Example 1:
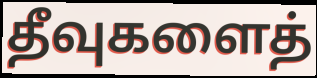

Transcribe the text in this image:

தீவுகளைத்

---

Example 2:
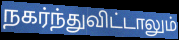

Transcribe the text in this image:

நகர்ந்துவிட்டாலும்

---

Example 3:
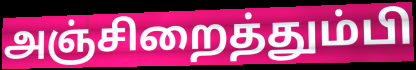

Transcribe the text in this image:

அஞ்சிறைத்தும்பி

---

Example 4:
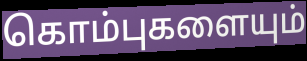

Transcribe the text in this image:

கொம்புகளையும்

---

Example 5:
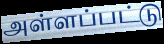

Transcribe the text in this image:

அள்ளப்பட்டு